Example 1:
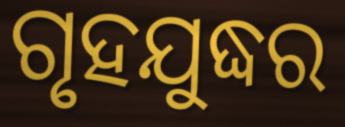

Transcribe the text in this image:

ଗୃହଯୁଦ୍ଧର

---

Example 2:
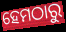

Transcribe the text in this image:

ହେମଠାରୁ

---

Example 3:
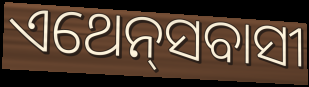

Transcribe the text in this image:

ଏଥେନ୍‌ସବାସୀ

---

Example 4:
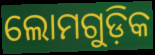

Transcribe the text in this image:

ଲୋମଗୁଡ଼ିକ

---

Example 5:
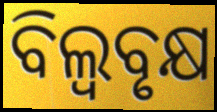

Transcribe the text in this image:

ବିଲ୍ୱବୃକ୍ଷ